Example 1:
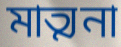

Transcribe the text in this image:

মাত্মনা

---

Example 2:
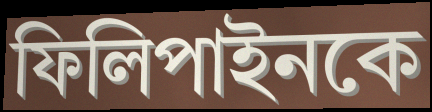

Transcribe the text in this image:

ফিলিপাইনকে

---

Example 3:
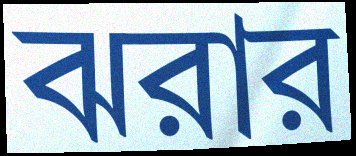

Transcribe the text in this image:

ঝরার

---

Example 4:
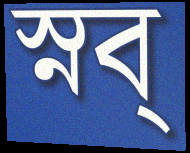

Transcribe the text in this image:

স্নব্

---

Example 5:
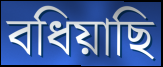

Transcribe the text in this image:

বধিয়াছি